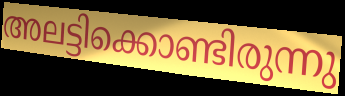
അലട്ടിക്കൊണ്ടിരുന്നു